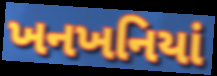
ખનખનિયાં